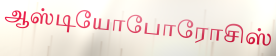
ஆஸ்டியோபோரோசிஸ்